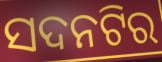
ସଦନଟିର